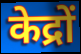
केद्रों